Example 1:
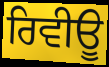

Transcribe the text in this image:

ਰਿਵੀਊ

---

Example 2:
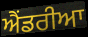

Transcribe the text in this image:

ਐਂਡਰੀਆ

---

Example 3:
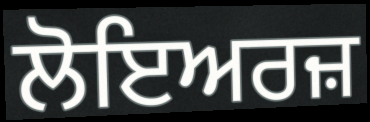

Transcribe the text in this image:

ਲੋਇਅਰਜ਼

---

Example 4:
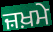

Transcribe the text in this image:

ਜ਼ਖ਼ਮੇ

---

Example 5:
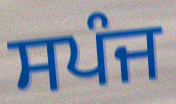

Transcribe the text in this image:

ਸਪੰਜ